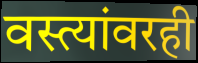
वस्त्यांवरही